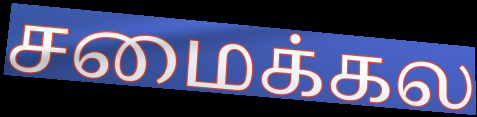
சமைக்கல